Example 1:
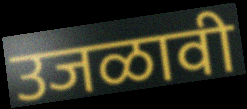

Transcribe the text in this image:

उजळावी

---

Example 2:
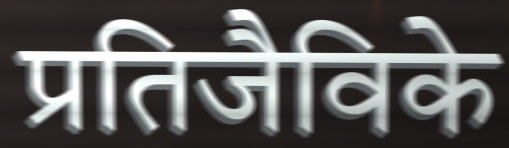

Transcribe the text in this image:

प्रतिजैविके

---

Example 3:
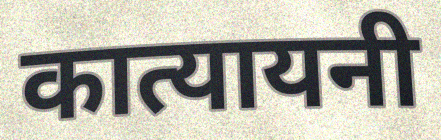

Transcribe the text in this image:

कात्यायनी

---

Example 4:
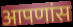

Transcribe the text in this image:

आपणांस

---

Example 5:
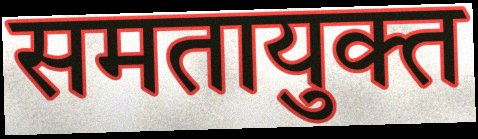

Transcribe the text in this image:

समतायुक्त